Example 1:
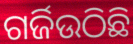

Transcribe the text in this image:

ଗର୍ଜିଉଠିଛି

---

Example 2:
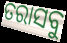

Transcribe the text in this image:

ତରାସବୁ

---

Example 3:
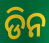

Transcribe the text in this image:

ଡିନ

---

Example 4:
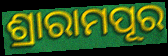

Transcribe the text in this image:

ଶ୍ରାରାମପୂର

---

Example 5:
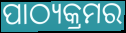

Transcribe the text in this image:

ପାଠ୍ୟକ୍ରମର